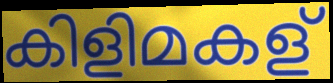
കിളിമകള്